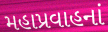
મહાપ્રવાહનાં